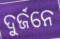
ଦୁର୍ଜନେ